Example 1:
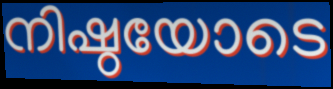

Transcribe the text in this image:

നിഷ്ഠയോടെ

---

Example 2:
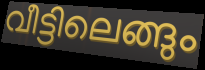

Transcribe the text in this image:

വീട്ടിലെങ്ങും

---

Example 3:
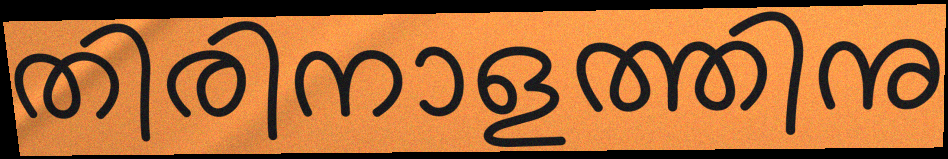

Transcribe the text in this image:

തിരിനാളത്തിനു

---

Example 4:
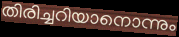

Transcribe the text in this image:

തിരിച്ചറിയാനൊന്നും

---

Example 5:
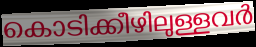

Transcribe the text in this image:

കൊടിക്കീഴിലുള്ളവർ